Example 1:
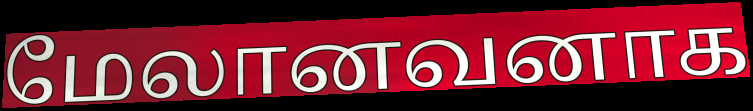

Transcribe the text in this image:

மேலானவனாக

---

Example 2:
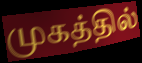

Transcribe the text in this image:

முகத்தில்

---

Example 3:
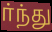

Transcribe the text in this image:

ர்ந்து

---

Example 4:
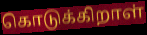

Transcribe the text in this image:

கொடுக்கிறாள்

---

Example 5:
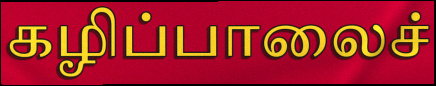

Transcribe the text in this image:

கழிப்பாலைச்